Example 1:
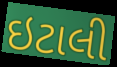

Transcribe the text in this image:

ઇટાલી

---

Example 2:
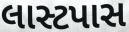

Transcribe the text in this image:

લાસ્ટપાસ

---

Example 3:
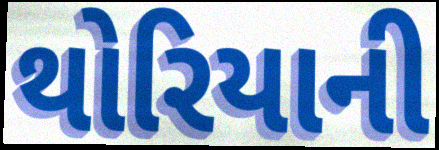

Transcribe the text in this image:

થોરિયાની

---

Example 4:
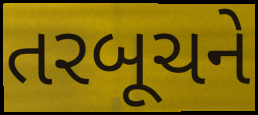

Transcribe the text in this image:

તરબૂચને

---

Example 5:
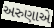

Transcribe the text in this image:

અરુણાએ